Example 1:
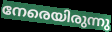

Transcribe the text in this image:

നേരെയിരുന്നു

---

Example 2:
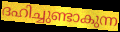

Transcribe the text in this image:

ദഹിച്ചുണ്ടാകുന്ന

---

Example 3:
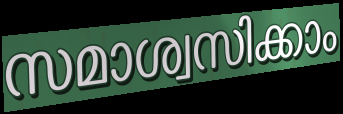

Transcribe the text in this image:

സമാശ്വസിക്കാം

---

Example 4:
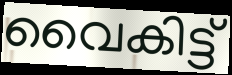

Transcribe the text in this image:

വൈകിട്ട്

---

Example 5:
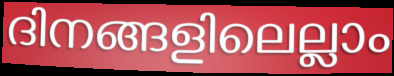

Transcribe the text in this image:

ദിനങ്ങളിലെല്ലാം